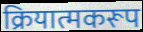
क्रियात्मकरूप